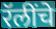
रॅलींचे